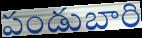
పండుబారి